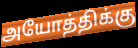
அயோத்திக்கு